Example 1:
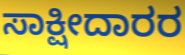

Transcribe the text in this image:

ಸಾಕ್ಷೀದಾರರ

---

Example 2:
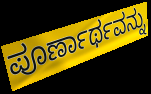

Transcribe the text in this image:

ಪೂರ್ಣಾರ್ಥವನ್ನು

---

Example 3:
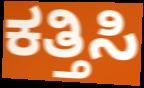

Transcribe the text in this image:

ಕತ್ತಿಸಿ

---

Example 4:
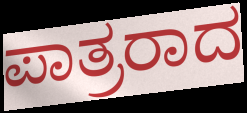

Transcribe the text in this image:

ಪಾತ್ರರಾದ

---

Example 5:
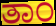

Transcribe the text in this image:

ತಾಂ